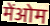
मेंओम